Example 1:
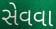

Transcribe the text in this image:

સેવવા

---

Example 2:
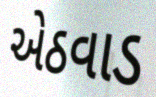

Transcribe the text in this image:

એઠવાડ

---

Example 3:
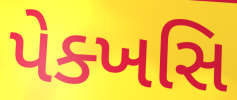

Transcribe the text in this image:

પેક્ખસિ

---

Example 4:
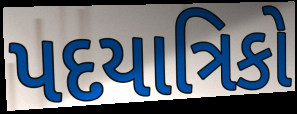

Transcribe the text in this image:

પદયાત્રિકો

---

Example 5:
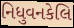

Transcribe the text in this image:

નિધુવનકેલિ